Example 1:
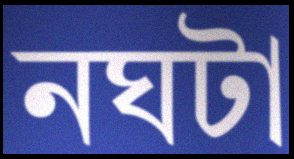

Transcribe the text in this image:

নঘটা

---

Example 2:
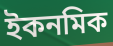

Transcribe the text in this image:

ইকনমিক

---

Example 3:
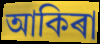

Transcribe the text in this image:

আকিৰা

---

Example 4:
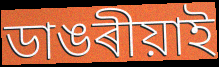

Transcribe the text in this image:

ডাঙৰীয়াই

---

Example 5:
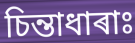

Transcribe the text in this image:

চিন্তাধাৰাঃ